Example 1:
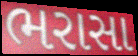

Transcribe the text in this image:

ભરાસા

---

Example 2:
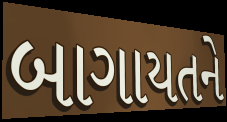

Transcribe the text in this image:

બાગાયતને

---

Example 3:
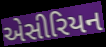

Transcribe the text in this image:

એસીરિયન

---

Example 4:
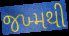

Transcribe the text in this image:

જખ્મથી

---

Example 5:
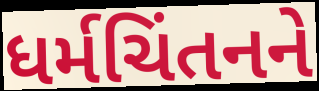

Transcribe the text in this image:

ધર્મચિંતનને